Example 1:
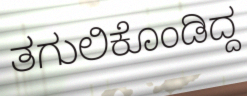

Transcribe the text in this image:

ತಗುಲಿಕೊಂಡಿದ್ದ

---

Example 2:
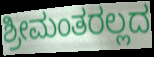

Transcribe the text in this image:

ಶ್ರೀಮಂತರಲ್ಲದ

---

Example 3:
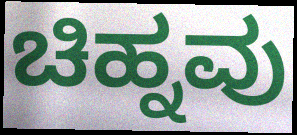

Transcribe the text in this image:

ಚಿಹ್ನವು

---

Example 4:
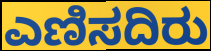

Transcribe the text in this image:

ಎಣಿಸದಿರು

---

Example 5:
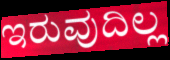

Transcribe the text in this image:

ಇರುವುದಿಲ್ಲ